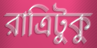
রাত্রিটুকু